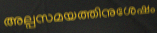
അല്പസമയത്തിനുശേഷം